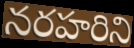
నరహరిని